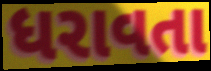
ધરાવતા